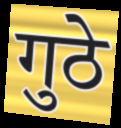
गुठे